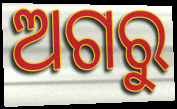
ଅଗରୁ